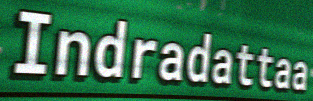
Indradattaa